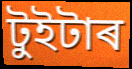
টুইটাৰ